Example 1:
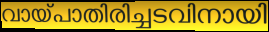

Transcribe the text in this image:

വായ്പാതിരിച്ചടവിനായി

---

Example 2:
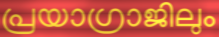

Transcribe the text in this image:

പ്രയാഗ്രാജിലും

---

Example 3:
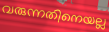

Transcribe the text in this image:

വരുന്നതിനെയല്ല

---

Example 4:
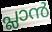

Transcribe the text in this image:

പ്ലാൻ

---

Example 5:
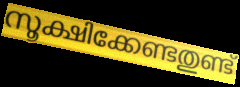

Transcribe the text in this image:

സൂക്ഷിക്കേണ്ടതുണ്ട്